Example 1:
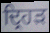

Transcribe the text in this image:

ਦ੍ਰਿਹੜ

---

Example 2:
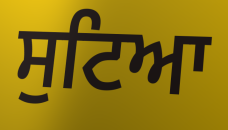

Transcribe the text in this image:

ਸੁਟਿਆ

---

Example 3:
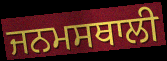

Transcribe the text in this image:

ਜਨਮਸਥਾਲੀ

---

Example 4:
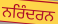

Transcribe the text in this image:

ਨਰਿੰਦਰਨ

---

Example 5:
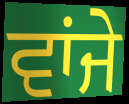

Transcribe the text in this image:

ਵਾਂਜੇ